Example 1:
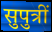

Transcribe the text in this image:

सुपुत्रीं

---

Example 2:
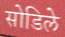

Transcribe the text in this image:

सोडिले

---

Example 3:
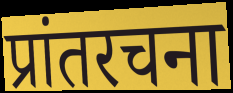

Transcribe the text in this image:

प्रांतरचना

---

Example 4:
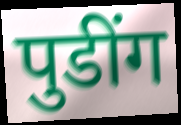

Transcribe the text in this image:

पुडींग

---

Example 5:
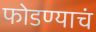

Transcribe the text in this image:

फोडण्याचं